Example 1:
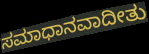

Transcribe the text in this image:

ಸಮಾಧಾನವಾದೀತು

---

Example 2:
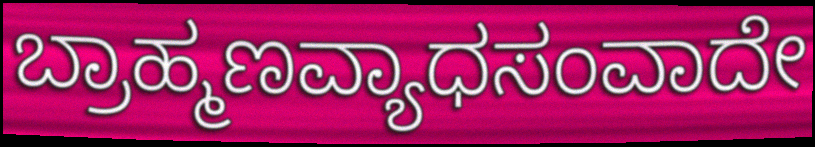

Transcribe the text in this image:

ಬ್ರಾಹ್ಮಣವ್ಯಾಧಸಂವಾದೇ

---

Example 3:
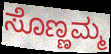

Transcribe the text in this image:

ಸೊಣ್ಣಮ್ಮ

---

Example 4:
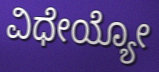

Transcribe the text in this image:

ವಿಧೇಯ್ಯೋ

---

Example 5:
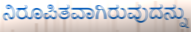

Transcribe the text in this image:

ನಿರೂಪಿತವಾಗಿರುವುದನ್ನು